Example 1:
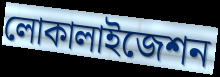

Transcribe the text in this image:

লোকালাইজেশন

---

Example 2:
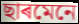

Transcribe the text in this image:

ছাৰমেনে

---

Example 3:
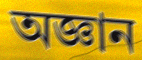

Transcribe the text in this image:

অজ্ঞান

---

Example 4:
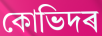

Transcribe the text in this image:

কোভিদৰ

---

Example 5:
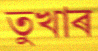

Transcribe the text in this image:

তুখাৰ